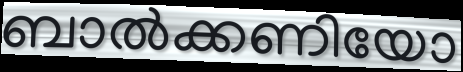
ബാൽക്കണിയോ